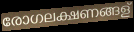
രോഗലക്ഷണങ്ങള്